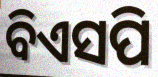
ବିଏସପି